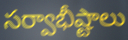
సర్వాభీష్టాలు